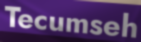
Tecumseh